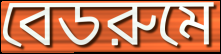
বেডরুমে